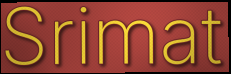
Srimat